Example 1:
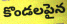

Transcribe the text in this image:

కొండలపైన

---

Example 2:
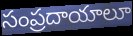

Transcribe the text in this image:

సంప్రదాయాలూ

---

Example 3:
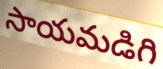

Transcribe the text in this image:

సాయమడిగి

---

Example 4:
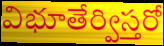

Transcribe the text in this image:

విభూతేర్విస్తరో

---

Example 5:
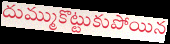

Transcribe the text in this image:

దుమ్ముకొట్టుకుపోయిన